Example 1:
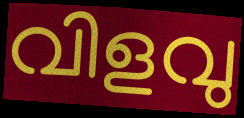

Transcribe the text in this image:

വിളവു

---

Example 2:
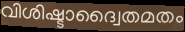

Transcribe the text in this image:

വിശിഷ്ടാദ്വൈതമതം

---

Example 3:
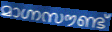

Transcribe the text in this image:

മാഗ്നസൗണ്ട്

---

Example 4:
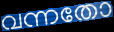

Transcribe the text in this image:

വന്നതോ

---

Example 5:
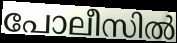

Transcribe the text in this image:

പോലീസിൽ